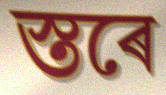
স্তৰে